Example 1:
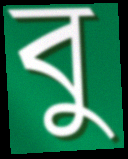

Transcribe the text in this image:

বু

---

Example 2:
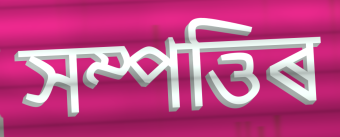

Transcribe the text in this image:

সম্পত্তিৰ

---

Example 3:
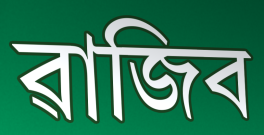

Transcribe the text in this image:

ৱাজিব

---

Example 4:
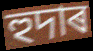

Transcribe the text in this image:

হুদাৰ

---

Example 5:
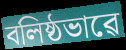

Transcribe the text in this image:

বলিষ্ঠভাৱে